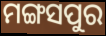
ମଙ୍ଗସପୁର